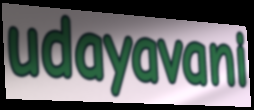
udayavani